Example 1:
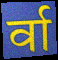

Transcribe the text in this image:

र्वा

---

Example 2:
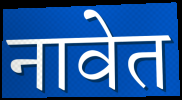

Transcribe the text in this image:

नावेत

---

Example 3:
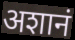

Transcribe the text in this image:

अशानं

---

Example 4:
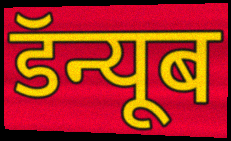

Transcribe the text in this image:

डॅन्यूब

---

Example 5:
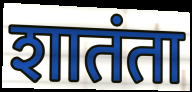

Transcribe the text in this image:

शातंता